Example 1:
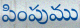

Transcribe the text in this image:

పింపుము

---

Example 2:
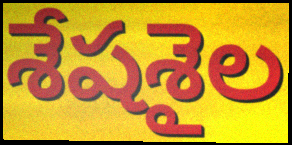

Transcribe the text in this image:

శేషశైల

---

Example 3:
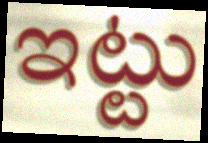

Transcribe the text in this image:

ఇట్టు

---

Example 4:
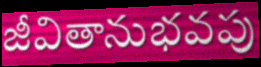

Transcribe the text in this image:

జీవితానుభవపు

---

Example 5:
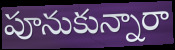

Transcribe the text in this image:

పూనుకున్నారా